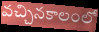
వచ్చినకాలంలో